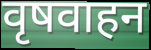
वृषवाहन